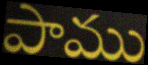
పాము